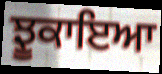
ਝੂਕਾਇਆ